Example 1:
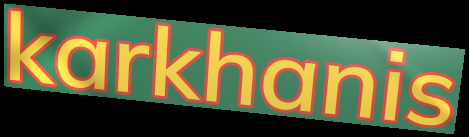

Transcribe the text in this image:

karkhanis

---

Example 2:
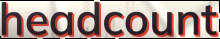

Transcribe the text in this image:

headcount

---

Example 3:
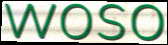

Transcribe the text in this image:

woso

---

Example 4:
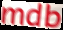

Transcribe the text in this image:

mdb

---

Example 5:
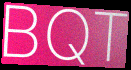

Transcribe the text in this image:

BQT